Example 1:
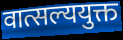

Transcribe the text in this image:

वात्सल्ययुक्त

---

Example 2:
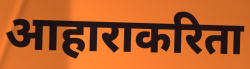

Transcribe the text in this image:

आहाराकरिता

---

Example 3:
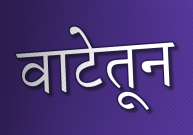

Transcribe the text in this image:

वाटेतून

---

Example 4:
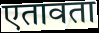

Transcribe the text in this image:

एतावता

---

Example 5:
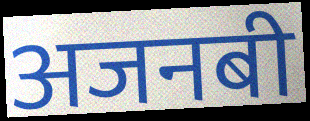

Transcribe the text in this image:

अजनबी